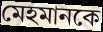
মেহমানকে